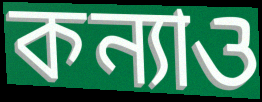
কন্যাও